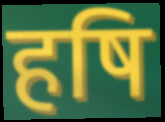
हषि